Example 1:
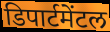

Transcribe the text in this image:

डिपार्टमेंटल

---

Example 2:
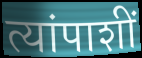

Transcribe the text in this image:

त्यांपाशीं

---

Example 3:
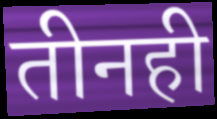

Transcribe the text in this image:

तीनही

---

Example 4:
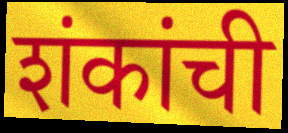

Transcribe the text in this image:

शंकांची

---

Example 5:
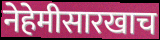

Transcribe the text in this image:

नेहेमीसारखाच